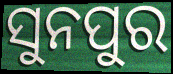
ସୁନପୁର